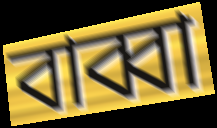
বাব্বা